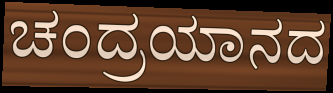
ಚಂದ್ರಯಾನದ